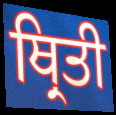
ਥ੍ਰਿਤੀ